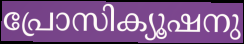
പ്രോസിക്യൂഷനു